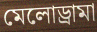
মেলোড্রামা